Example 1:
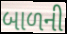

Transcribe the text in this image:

બાળની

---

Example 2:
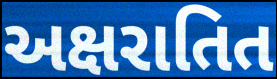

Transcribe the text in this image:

અક્ષરાતિત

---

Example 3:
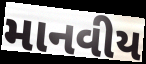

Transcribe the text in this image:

માનવીય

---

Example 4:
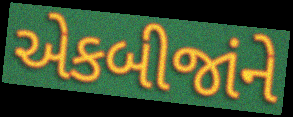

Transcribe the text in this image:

એકબીજાંને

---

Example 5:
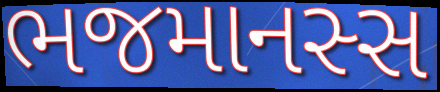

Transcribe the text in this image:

ભજમાનસ્સ